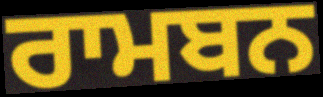
ਰਾਮਬਨ